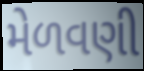
મેળવણી